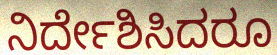
ನಿರ್ದೇಶಿಸಿದರೂ